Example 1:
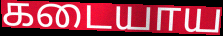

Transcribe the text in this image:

கடையாய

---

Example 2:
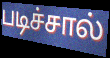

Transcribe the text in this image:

படிச்சால்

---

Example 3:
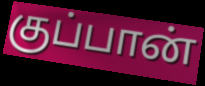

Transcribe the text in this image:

குப்பான்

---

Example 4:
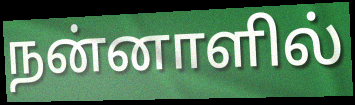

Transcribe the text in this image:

நன்னாளில்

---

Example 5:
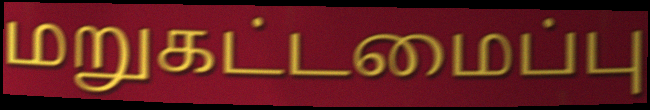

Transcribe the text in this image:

மறுகட்டமைப்பு